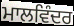
ਮਾਲਵਿੰਦਰ